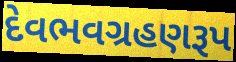
દેવભવગ્રહણરૂપ